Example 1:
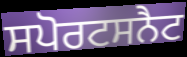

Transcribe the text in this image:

ਸਪੋਰਟਸਨੈਟ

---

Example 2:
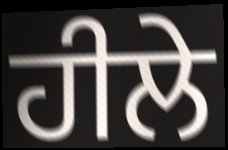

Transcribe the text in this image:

ਹੀਲੇ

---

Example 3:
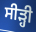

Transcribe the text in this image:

ਸੀੜ੍ਹੀ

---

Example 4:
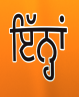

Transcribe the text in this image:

ਇੱਨ੍ਹਾਂ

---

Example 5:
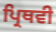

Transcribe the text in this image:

ਪ੍ਰਿਥਵੀ